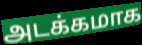
அடக்கமாக